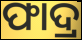
ଫାଦ୍ର